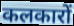
कलकारों